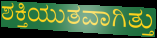
ಶಕ್ತಿಯುತವಾಗಿತ್ತು